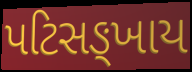
પટિસઙ્ખાય